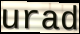
urad